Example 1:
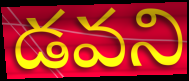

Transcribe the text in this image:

డవని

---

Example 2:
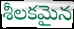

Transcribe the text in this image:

శీలకమైన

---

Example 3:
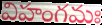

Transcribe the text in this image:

విహంగమః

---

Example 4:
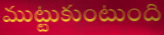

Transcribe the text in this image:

ముట్టుకుంటుంది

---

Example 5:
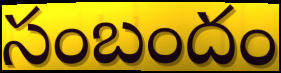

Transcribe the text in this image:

సంబందం